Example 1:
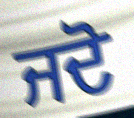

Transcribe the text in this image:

ਜਦੋ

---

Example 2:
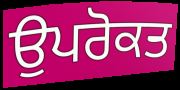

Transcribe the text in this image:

ਉਪਰੋਕਤ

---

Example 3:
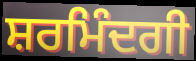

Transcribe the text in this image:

ਸ਼ਰਮਿੰਦਗੀ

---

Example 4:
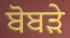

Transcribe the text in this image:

ਬੋਬੜੇ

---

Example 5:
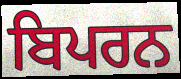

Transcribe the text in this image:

ਬਿਪਰਨ